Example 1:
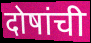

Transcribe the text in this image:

दोषांची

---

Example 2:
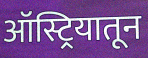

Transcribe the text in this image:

ऑस्ट्रियातून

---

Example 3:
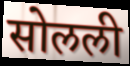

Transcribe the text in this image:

सोलली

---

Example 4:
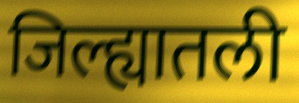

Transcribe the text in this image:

जिल्ह्यातली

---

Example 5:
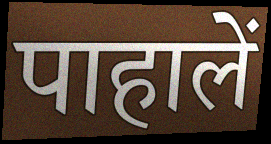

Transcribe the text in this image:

पाहालें